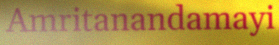
Amritanandamayi